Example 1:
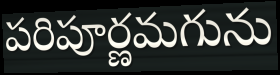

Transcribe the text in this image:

పరిపూర్ణమగును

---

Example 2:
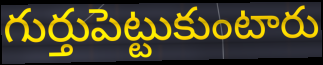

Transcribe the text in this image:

గుర్తుపెట్టుకుంటారు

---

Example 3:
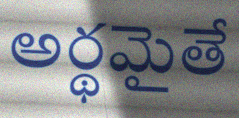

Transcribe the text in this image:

అర్థమైతే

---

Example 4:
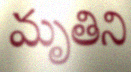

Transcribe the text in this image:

మృతిని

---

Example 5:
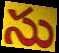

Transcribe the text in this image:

సు